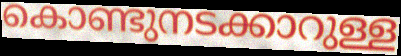
കൊണ്ടുനടക്കാറുള്ള